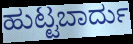
ಹುಟ್ಟಬಾರ್ದು